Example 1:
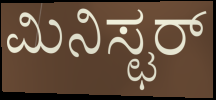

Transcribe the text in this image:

ಮಿನಿಸ್ಟರ್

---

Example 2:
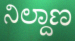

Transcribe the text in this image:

ನಿಲ್ದಾಣ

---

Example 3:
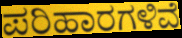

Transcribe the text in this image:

ಪರಿಹಾರಗಳಿವೆ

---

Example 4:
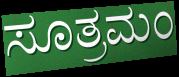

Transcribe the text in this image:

ಸೂತ್ರಮಂ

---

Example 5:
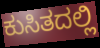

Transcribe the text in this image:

ಕುಸಿತದಲ್ಲಿ